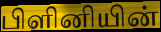
பிளினியின்